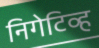
निगेटिव्ह